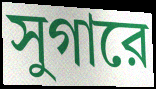
সুগারে